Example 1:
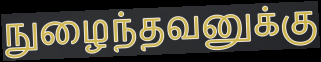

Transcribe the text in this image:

நுழைந்தவனுக்கு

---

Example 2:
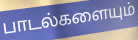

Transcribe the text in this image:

பாடல்களையும்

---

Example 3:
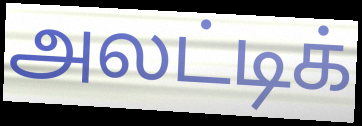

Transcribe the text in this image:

அலட்டிக்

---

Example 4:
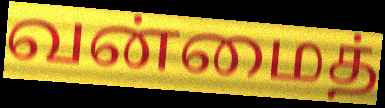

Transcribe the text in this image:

வன்மைத்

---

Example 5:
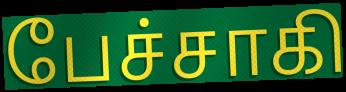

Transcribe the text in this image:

பேச்சாகி